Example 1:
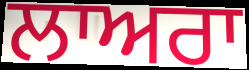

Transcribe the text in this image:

ਲਾਅਰਾ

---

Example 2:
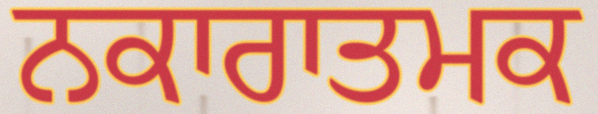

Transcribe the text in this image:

ਨਕਾਰਾਤਮਕ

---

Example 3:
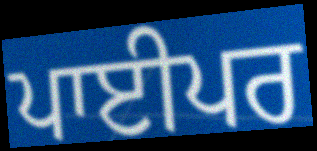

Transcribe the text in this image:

ਪਾਈਪਰ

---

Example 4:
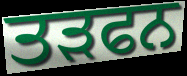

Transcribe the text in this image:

ਤੜਫਨ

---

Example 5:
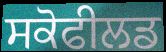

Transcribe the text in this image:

ਸਕੋਫੀਲਡ